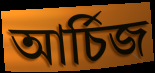
আর্চিজ